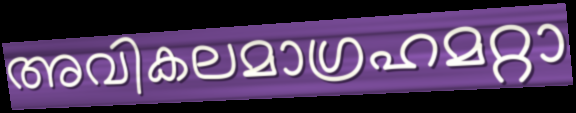
അവികലമാഗ്രഹമറ്റാ